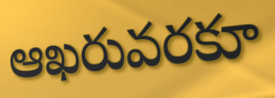
ఆఖరువరకూ